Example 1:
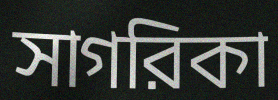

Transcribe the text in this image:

সাগরিকা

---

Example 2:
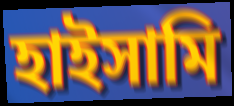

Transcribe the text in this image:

হাইসামি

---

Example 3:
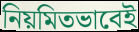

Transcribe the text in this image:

নিয়মিতভাবেই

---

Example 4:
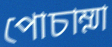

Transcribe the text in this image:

পোচাম্মা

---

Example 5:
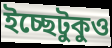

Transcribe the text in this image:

ইচ্ছেটুকুও